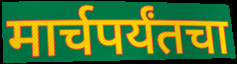
मार्चपर्यंतचा